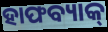
ହାଫବ୍ୟାକ୍